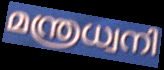
മന്ത്രധ്വനി